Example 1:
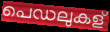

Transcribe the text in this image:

പെഡലുകള്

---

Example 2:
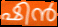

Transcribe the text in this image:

ഷിൻ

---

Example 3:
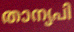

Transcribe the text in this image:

താന്യപി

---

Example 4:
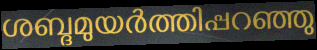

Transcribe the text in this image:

ശബ്ദമുയർത്തിപ്പറഞ്ഞു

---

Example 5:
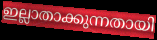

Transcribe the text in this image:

ഇല്ലാതാക്കുന്നതായി